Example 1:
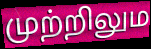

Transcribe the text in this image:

முற்றிலும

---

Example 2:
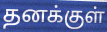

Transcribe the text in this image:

தனக்குள்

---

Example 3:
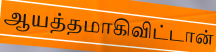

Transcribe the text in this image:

ஆயத்தமாகிவிட்டான்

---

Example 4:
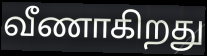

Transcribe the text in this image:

வீணாகிறது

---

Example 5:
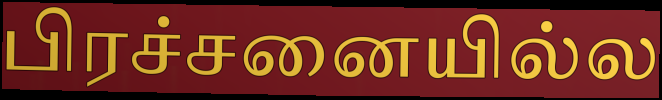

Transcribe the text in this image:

பிரச்சனையில்ல